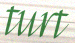
turt